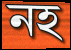
নহ